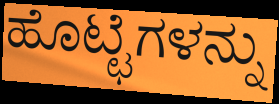
ಹೊಟ್ಟೆಗಳನ್ನು